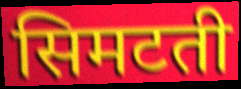
सिमटती